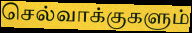
செல்வாக்குகளும்